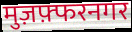
मुज़फ़्फरनगर